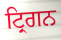
ਟ੍ਰਿਗਨ